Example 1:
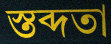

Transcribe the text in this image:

স্তব্দতা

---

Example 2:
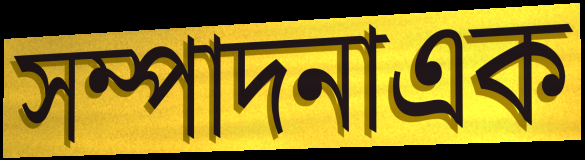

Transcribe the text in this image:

সম্পাদনাএক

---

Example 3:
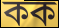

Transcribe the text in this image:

কক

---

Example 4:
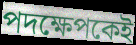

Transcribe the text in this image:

পদক্ষেপকেই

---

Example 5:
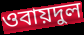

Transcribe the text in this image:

ওবায়দুল